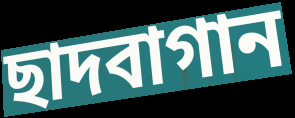
ছাদবাগান